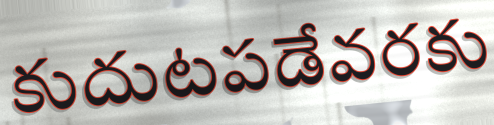
కుదుటపడేవరకు